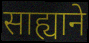
साह्याने